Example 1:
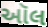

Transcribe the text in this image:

ઑલ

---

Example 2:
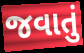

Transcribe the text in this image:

જવાતું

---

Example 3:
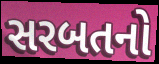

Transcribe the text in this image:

સરબતનો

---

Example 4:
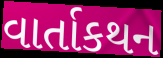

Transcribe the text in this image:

વાર્તાકથન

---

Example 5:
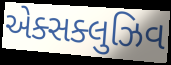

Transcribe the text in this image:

એક્સક્લુઝિવ